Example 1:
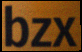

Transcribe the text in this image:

bzx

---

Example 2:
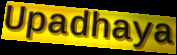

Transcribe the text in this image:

Upadhaya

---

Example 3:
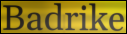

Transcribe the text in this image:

Badrike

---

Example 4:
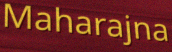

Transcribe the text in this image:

Maharajna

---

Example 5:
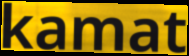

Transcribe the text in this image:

kamat